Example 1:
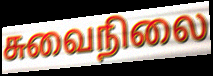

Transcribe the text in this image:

சுவைநிலை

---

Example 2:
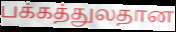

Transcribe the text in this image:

பக்கத்துலதான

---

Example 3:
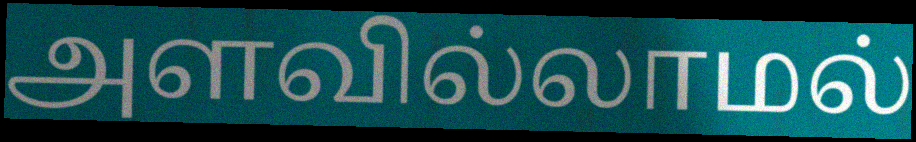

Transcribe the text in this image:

அளவில்லாமல்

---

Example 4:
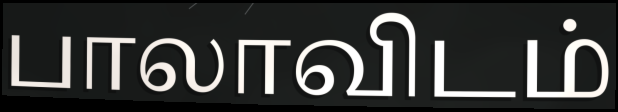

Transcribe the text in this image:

பாலாவிடம்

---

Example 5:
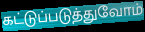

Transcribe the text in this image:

கட்டுப்படுத்துவோம்